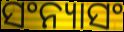
ସଂନ୍ୟାସଂ